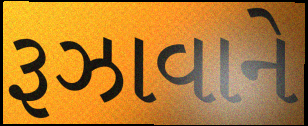
રૂઝાવાને